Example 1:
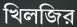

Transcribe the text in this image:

খিলজির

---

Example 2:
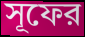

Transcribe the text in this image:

সূফের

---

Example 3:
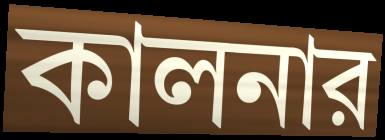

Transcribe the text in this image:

কালনার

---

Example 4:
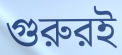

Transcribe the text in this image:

গুরুরই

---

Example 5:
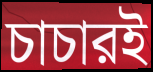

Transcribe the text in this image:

চাচারই